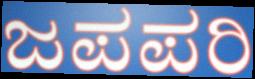
ಜಪಪರಿ